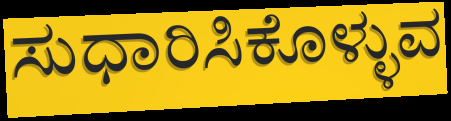
ಸುಧಾರಿಸಿಕೊಳ್ಳುವ